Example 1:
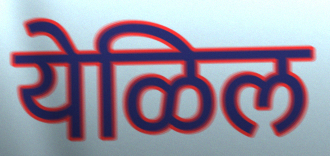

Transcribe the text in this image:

येळिल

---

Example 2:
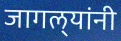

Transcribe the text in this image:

जागल्यांनी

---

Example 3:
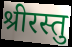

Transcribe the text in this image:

श्रीरस्तु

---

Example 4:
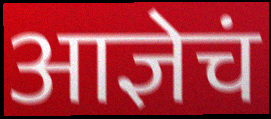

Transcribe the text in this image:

आज्ञेचं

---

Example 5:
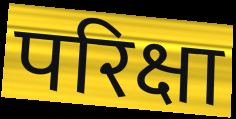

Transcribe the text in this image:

परिक्षा